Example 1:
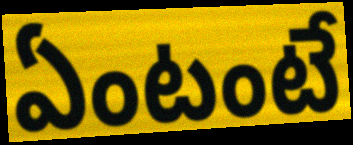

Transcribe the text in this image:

ఏంటంటే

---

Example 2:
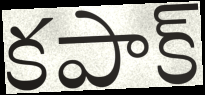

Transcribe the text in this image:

కపాక్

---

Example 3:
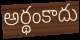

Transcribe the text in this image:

అర్థంకాదు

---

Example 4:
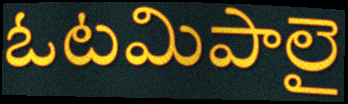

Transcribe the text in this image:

ఓటమిపాలై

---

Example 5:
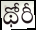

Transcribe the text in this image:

థోరీ